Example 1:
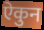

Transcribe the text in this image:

ऐकुन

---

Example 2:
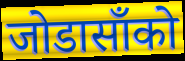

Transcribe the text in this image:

जोडासाँको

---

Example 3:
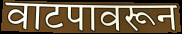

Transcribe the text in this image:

वाटपावरून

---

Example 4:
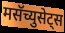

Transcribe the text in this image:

मसॅच्युसेट्स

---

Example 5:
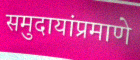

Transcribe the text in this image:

समुदायांप्रमाणे